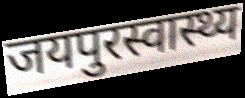
जयपुरस्वास्थ्य